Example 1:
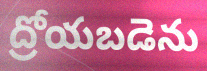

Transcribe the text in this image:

ద్రోయబడెను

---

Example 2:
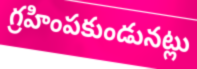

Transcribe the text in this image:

గ్రహింపకుండునట్లు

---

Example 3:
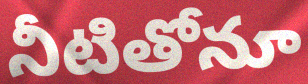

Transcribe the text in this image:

నీటితోనూ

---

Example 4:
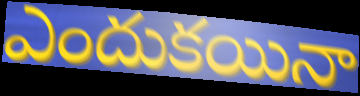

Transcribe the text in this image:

ఎందుకయినా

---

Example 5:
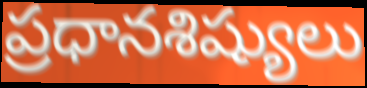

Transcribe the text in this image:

ప్రధానశిష్యులు